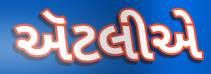
ઍટલીએ